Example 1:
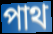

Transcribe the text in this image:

পাথ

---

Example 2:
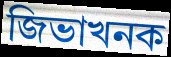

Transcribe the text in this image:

জিভাখনক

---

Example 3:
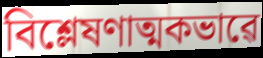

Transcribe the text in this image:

বিশ্লেষণাত্মকভাৱে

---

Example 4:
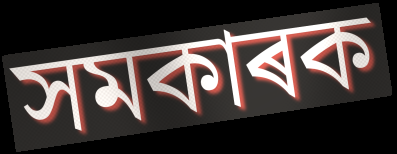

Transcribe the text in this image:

সমকাৰক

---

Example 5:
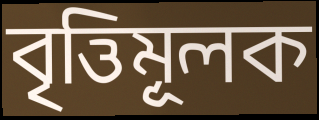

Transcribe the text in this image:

বৃত্তিমূলক